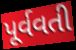
પૂર્વવતી